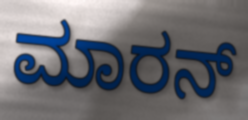
ಮಾರನ್